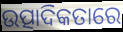
ଉତ୍ପାଦିକତାରେ